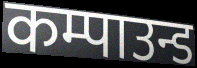
कम्पाउन्ड